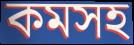
কমসহ